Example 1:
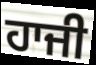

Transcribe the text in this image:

ਹਾਜੀ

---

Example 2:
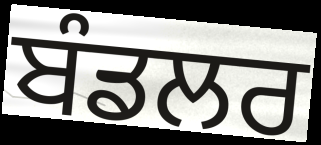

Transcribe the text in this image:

ਬੰਡਲਰ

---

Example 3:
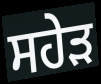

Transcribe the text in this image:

ਸਹੇੜ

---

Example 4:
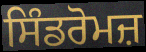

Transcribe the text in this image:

ਸਿੰਡਰੋਮਜ਼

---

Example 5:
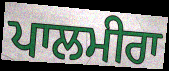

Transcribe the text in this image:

ਪਾਲਮੀਰਾ